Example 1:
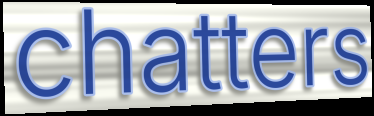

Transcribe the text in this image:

chatters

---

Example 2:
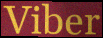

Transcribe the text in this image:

Viber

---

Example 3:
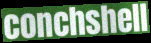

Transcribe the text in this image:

conchshell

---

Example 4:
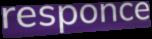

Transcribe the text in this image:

responce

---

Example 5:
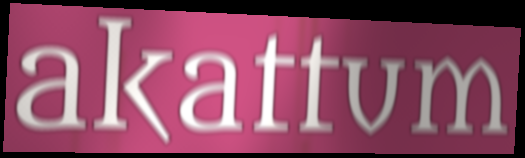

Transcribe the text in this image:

akattum